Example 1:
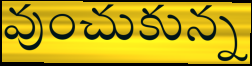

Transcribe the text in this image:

వుంచుకున్న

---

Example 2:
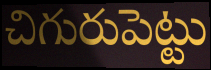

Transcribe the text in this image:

చిగురుపెట్టు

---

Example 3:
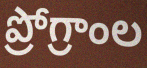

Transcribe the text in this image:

ప్రోగ్రాంల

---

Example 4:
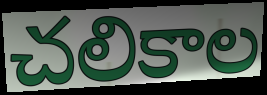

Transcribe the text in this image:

చలికాల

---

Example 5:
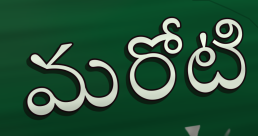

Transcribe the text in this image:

మరోటి